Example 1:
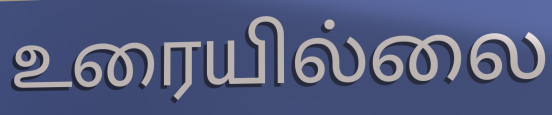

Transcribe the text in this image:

உரையில்லை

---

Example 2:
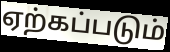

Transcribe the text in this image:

ஏற்கப்படும்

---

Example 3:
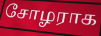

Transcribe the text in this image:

சோழராக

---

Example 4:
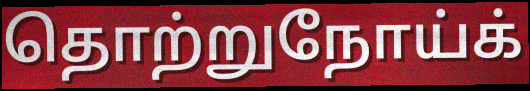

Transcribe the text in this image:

தொற்றுநோய்க்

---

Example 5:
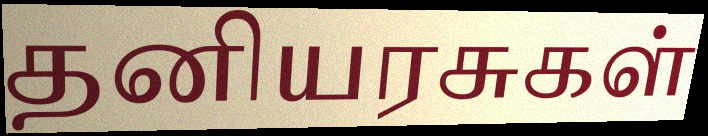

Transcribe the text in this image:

தனியரசுகள்